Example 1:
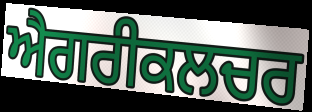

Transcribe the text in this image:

ਐਗਰੀਕਲਚਰ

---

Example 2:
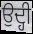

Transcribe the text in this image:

ਉਦ੍ਹੀ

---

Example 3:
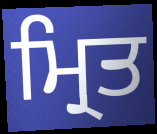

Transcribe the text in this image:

ਮ੍ਰਿਤ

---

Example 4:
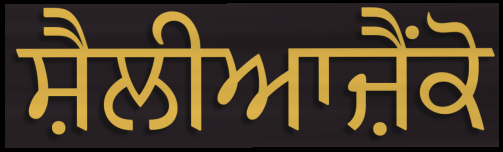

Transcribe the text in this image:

ਸ਼ੈਲੀਆਜ਼ੈਂਕੋ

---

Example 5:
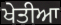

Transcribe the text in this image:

ਖੇਤੀਆ